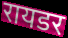
रायडर